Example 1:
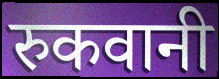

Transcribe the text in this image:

रुकवानी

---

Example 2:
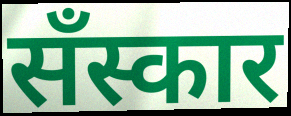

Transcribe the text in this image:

सँस्कार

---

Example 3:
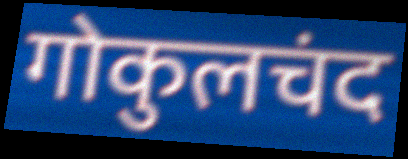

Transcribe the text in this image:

गोकुलचंद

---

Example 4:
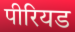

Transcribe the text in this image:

पीरियड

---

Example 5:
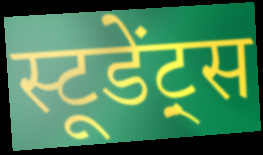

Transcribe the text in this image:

स्टूडेंट़्स